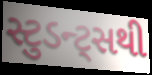
સ્ટુડન્ટ્સથી